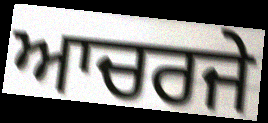
ਆਚਰਜੇ